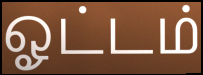
ஓட்டம்